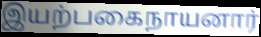
இயற்பகைநாயனார்